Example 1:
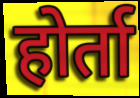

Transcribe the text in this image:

होर्ता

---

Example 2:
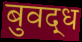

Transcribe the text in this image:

बुवद्ध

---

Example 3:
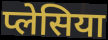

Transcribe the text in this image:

प्लेसिया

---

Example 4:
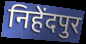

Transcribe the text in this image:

निहेंदपुर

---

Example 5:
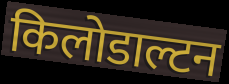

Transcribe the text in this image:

किलोडाल्टन